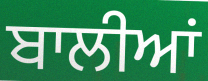
ਬਾਲੀਆਂ